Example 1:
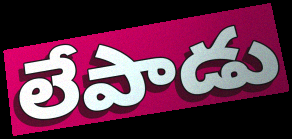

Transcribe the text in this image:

లేపాడు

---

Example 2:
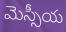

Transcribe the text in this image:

మెస్సీయ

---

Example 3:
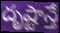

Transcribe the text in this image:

దృష్టాన్తే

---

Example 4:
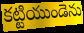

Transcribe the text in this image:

కట్టియుండెను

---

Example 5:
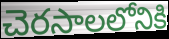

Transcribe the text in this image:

చెరసాలలోనికి